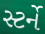
સ્ટર્ને